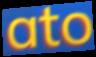
ato